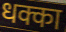
धक्का